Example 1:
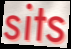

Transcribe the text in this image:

sits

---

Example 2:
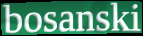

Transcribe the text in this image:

bosanski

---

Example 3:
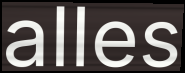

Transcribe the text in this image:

alles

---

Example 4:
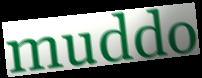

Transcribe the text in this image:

muddo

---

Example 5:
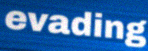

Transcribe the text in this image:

evading